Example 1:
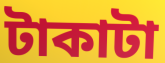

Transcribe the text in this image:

টাকাটা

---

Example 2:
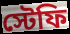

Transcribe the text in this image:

স্টেফি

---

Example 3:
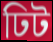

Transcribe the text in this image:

ঢিট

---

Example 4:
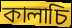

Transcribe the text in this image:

কালাচি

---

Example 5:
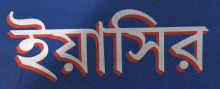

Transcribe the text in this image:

ইয়াসির